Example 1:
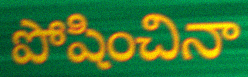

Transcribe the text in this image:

పోషించినా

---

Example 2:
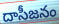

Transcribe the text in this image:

దాసీజనం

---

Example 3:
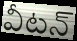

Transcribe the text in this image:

వీటన్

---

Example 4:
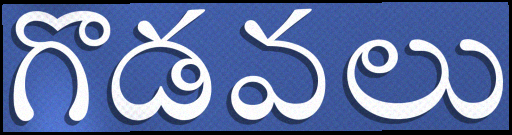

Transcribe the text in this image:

గొడవలు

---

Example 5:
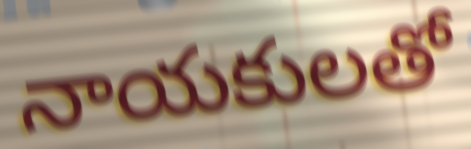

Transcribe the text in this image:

నాయకులతో